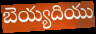
బెయ్యదియు